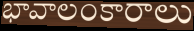
భావాలంకారాలు